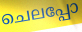
ചെലപ്പോ